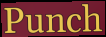
Punch